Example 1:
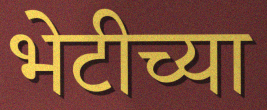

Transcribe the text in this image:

भेटीच्या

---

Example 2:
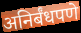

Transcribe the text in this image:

अनिर्बंधपणे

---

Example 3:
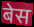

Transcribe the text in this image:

बेस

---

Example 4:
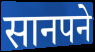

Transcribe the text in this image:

सानपने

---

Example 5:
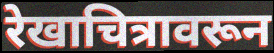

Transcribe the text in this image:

रेखाचित्रावरून